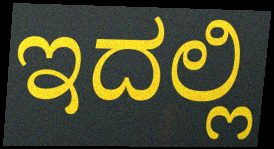
ಇದಲ್ಲಿ